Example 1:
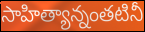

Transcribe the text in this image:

సాహిత్యాన్నంతటినీ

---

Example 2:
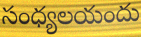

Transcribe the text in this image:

సంధ్యలయందు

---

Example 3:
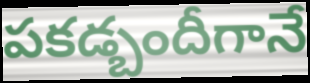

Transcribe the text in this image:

పకడ్బందీగానే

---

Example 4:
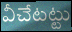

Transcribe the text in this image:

వీచేటట్టు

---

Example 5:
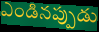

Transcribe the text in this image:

ఎండినప్పుడు